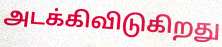
அடக்கிவிடுகிறது